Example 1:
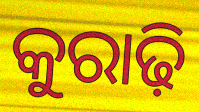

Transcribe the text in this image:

କୁରାଢ଼ି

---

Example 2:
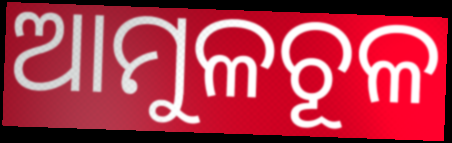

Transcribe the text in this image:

ଆମୁଳଚୂଳ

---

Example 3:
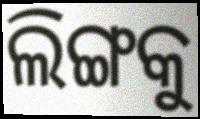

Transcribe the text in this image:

ଲିଙ୍ଗକୁ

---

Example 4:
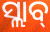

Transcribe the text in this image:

ସ୍ଲାବ୍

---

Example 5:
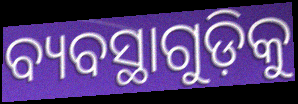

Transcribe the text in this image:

ବ୍ୟବସ୍ଥାଗୁଡ଼ିକୁ